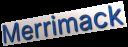
Merrimack